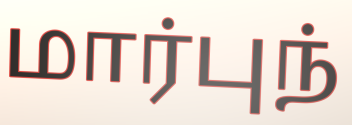
மார்புந்